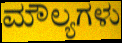
ಮೌಲ್ಯಗಳು